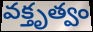
వక్తృత్వం